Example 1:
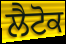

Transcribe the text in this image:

ਲੈਟੋਕ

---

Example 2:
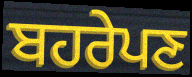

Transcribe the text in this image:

ਬਹਰੇਪਣ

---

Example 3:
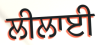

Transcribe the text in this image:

ਲੀਲਾਈ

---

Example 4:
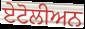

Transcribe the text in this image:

ਏਟੋਲੀਅਨ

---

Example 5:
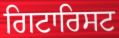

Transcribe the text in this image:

ਗਿਟਾਰਿਸਟ